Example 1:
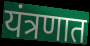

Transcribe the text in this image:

यंत्रणात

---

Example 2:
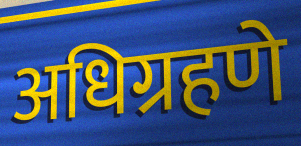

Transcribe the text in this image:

अधिग्रहणे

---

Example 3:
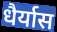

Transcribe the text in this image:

धैर्यास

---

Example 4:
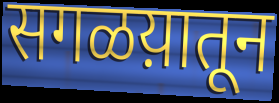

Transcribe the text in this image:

सगळय़ातून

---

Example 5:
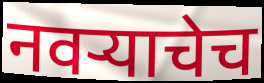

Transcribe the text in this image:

नवऱ्याचेच